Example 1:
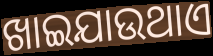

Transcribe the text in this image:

ଖାଇଯାଉଥାଏ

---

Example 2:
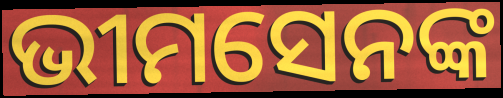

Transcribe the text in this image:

ଭୀମସେନଙ୍କ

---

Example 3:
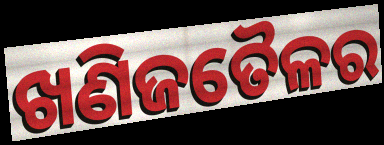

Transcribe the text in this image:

ଖଣିଜତୈଳର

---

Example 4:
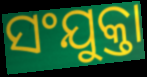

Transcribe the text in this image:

ସଂଯୁକ୍ତା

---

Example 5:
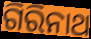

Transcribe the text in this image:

ଗିରିନାଥ